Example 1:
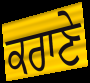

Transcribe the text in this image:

ਕਰਾਣੇ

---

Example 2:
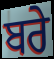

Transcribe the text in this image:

ਬਰੇ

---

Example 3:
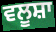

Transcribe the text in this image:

ਵਲੂਸ਼ਾ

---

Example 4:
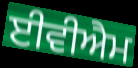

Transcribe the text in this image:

ਈਵੀਐਮ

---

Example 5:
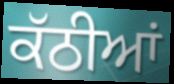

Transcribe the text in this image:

ਕੱਠੀਆਂ